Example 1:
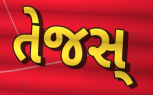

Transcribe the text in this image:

તેજસ્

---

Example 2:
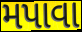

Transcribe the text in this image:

મપાવા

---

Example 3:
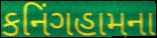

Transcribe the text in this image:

કનિંગહામના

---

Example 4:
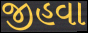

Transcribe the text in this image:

જીહવા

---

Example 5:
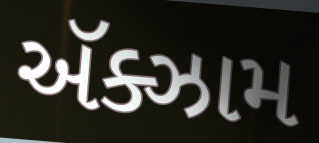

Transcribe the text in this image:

ઍક્ઝામ